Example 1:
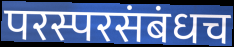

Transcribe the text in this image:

परस्परसंबंधच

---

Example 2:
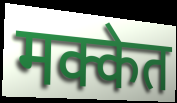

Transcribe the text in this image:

मक्केत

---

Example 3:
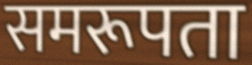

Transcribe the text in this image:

समरूपता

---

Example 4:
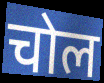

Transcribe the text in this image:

चोल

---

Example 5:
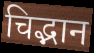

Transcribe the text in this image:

चिद्भान